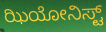
ಝಿಯೋನಿಸ್ಟ್